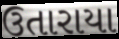
ઉતારાયા